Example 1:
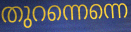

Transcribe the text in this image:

തുറന്നെന്നെ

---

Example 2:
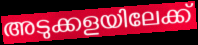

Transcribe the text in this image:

അടുക്കളയിലേക്ക്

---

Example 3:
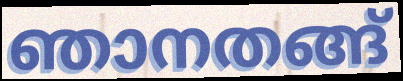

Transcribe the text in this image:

ഞാനതങ്ങ്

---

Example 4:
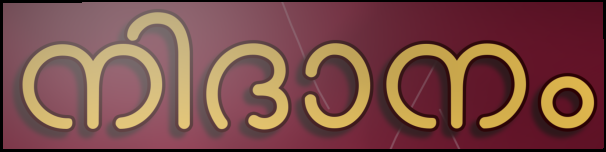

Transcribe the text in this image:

നിദാനം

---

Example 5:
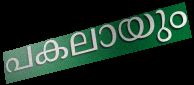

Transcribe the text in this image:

പകലായും